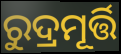
ରୁଦ୍ରମୂର୍ତ୍ତି